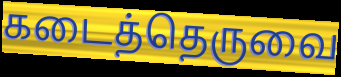
கடைத்தெருவை